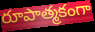
రూపాత్మకంగా